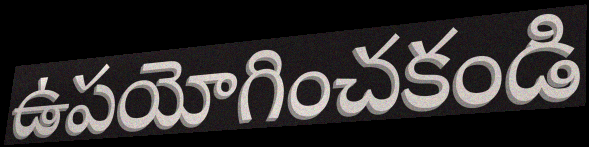
ఉపయోగించకండి